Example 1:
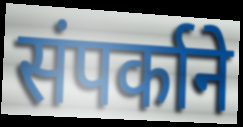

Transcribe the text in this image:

संपर्काने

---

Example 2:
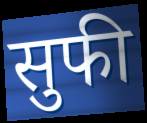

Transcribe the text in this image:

सुफी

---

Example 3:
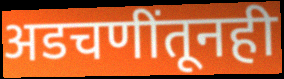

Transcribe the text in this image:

अडचणींतूनही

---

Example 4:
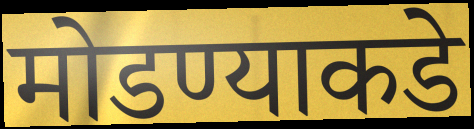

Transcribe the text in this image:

मोडण्याकडे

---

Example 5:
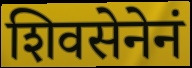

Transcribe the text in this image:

शिवसेनेनं